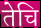
तेचि